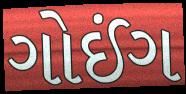
ગોઈંગ